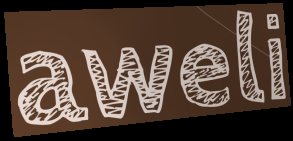
aweli